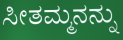
ಸೀತಮ್ಮನನ್ನು